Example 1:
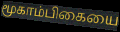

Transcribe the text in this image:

மூகாம்பிகையை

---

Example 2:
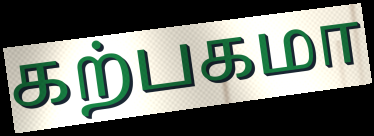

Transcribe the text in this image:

கற்பகமா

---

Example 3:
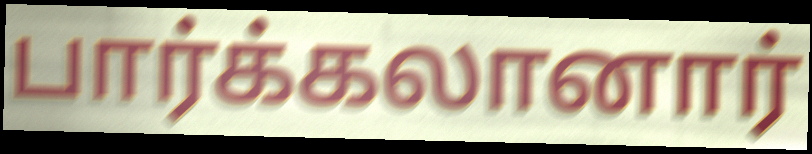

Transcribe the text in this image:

பார்க்கலானார்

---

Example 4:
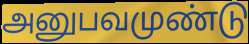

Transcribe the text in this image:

அனுபவமுண்டு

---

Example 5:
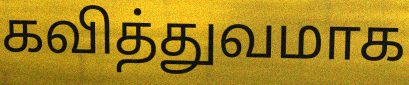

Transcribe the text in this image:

கவித்துவமாக